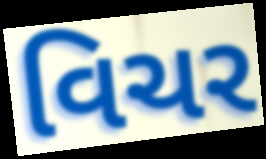
વિચર